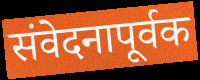
संवेदनापूर्वक